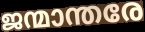
ജന്മാന്തരേ